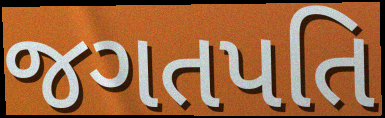
જગતપતિ